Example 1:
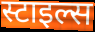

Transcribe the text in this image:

स्टाइल्स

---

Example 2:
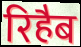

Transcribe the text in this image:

रिहैब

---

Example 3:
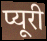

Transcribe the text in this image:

प्यूरी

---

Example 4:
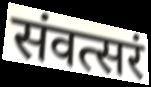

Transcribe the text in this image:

संवत्सरं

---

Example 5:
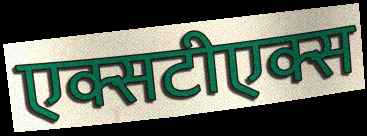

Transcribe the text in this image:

एक्सटीएक्स